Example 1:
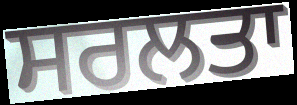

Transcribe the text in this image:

ਸਰਲਤਾ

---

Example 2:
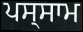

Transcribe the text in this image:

ਪਸ੍ਸਾਮ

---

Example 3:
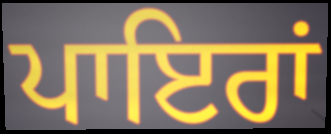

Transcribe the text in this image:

ਪਾਇਰਾਂ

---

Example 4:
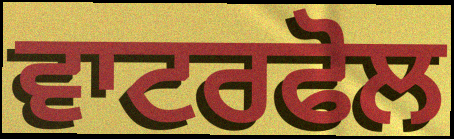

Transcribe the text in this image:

ਵਾਟਰਫੋਲ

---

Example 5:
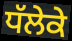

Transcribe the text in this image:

ਧੱਲੇਕੇ